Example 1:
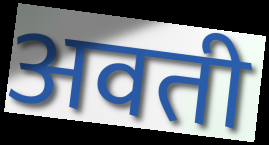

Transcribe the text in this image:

अवती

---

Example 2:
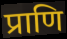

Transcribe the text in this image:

प्राणि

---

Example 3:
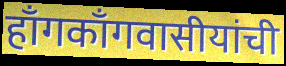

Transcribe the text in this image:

हाँगकाँगवासीयांची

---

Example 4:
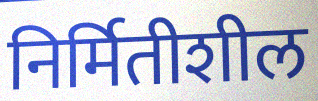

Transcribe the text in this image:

निर्मितीशील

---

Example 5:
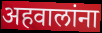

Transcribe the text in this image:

अहवालांना